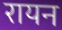
रायन